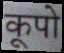
कूपो